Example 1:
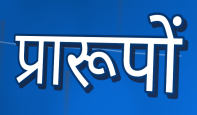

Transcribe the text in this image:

प्रारूपों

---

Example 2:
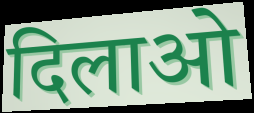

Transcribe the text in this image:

दिलाओ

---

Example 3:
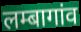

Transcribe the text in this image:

लम्बागांव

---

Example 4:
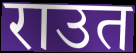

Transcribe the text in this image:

राउत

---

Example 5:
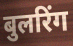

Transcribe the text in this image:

बुलरिंग